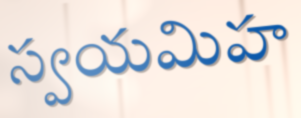
స్వయమిహ